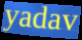
yadav